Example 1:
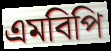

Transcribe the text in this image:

এমবিপি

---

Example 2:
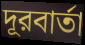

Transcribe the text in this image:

দূরবার্তা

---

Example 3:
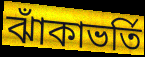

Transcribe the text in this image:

ঝাঁকাভর্তি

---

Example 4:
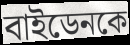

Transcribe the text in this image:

বাইডেনকে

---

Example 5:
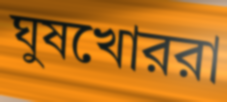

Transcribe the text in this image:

ঘুষখোররা